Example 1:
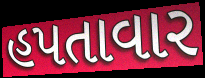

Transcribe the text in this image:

હપતાવાર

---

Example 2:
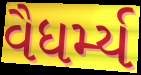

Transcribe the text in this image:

વૈધર્મ્ય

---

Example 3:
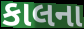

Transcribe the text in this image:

કાલના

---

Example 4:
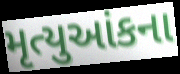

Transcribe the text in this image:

મૃત્યુઆંકના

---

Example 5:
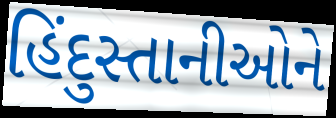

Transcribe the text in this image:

હિંદુસ્તાનીઓને